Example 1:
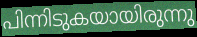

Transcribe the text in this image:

പിന്നിടുകയായിരുന്നു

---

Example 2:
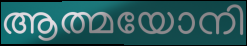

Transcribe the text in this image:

ആത്മയോനി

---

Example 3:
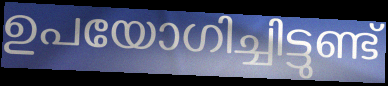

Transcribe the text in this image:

ഉപയോഗിച്ചിട്ടുണ്ട്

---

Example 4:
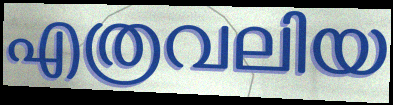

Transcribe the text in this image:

എത്രവലിയ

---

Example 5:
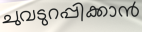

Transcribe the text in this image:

ചുവടുറപ്പിക്കാൻ